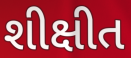
શીક્ષીત